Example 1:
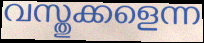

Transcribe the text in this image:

വസ്തുക്കളെന്ന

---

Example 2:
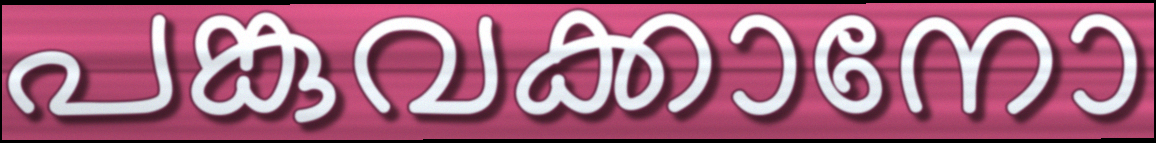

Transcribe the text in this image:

പങ്കുവക്കാനോ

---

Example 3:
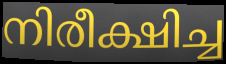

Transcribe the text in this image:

നിരീക്ഷിച്ച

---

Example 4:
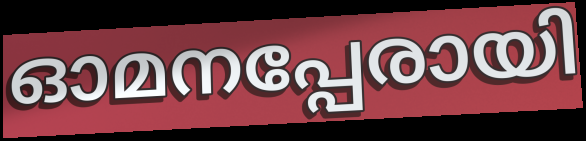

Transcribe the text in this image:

ഓമനപ്പേരായി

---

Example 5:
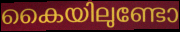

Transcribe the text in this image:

കൈയിലുണ്ടോ